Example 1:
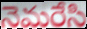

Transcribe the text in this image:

నెమరేసి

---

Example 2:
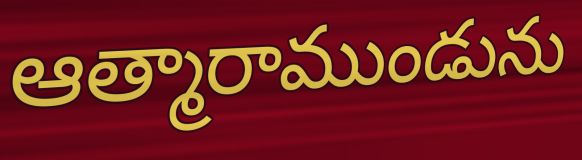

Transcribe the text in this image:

ఆత్మారాముండును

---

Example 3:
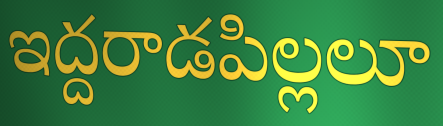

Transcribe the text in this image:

ఇద్దరాడపిల్లలూ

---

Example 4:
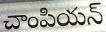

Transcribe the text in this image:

చాంపియన్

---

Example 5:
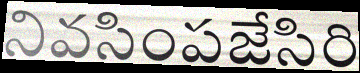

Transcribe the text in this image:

నివసింపజేసిరి